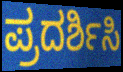
ಪ್ರದರ್ಶಿಸಿ